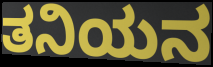
ತನಿಯನ